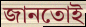
জানতোই